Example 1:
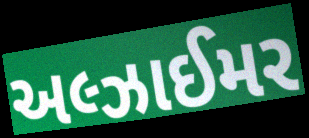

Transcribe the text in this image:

અલ્ઝાઈમર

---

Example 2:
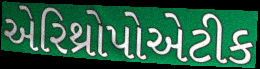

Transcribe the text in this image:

એરિથ્રોપોએટીક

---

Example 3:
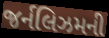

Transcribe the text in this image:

જર્નલિઝમની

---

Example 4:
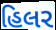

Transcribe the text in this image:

હિલર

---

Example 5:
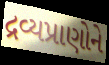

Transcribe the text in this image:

દ્રવ્યપ્રાણોને